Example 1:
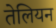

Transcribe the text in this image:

तेलियन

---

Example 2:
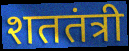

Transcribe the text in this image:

शततंत्री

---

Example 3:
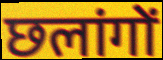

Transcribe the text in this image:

छलांगों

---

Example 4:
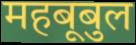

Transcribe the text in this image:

महबूबुल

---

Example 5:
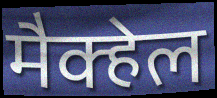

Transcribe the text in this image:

मैक्हेल